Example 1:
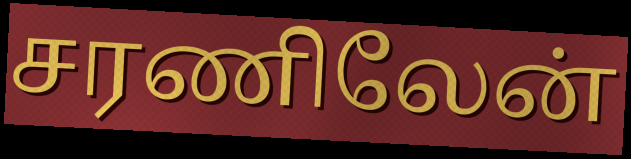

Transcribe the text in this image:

சரணிலேன்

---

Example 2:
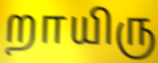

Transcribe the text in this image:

றாயிரு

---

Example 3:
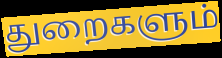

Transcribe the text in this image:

துறைகளும்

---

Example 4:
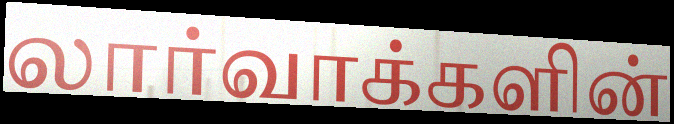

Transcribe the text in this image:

லார்வாக்களின்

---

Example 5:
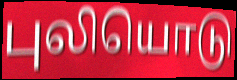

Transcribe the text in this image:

புலியொடு